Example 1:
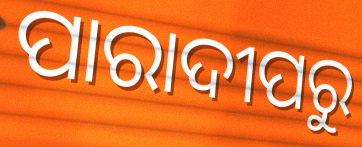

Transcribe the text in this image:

ପାରାଦୀପରୁ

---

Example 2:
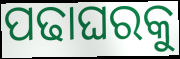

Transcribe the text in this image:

ପଢାଘରକୁ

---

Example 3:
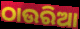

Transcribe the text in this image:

ଠାଉରିଆ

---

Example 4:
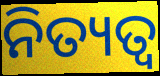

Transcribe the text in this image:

ନିତ୍ୟତ୍ୱ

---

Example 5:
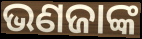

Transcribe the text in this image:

ଭଣଜାଙ୍କ